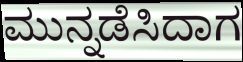
ಮುನ್ನಡೆಸಿದಾಗ